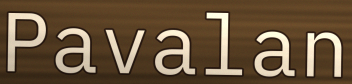
Pavalan